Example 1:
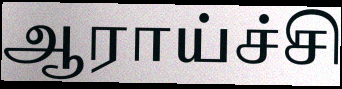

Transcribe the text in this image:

ஆராய்ச்சி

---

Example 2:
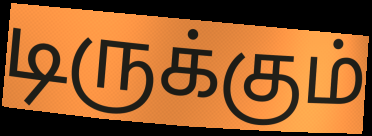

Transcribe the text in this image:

டிருக்கும்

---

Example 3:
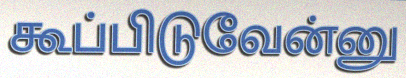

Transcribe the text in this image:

கூப்பிடுவேன்னு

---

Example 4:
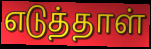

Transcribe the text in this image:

எடுத்தாள்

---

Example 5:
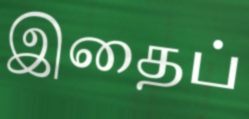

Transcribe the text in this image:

இதைப்